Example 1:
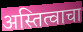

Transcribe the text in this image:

अस्तित्वाचा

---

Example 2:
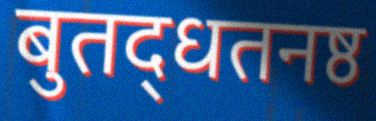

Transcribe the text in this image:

बुतद्धतनष्ठ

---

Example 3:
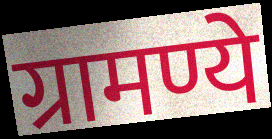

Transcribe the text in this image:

ग्रामण्ये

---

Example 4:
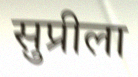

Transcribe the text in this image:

सुप्रीला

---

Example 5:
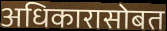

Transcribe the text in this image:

अधिकारासोबत